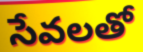
సేవలతో